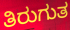
ತಿರುಗುತ